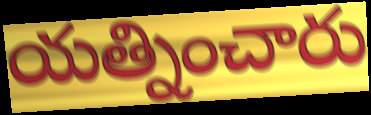
యత్నించారు